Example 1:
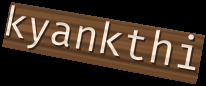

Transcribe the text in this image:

kyankthi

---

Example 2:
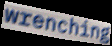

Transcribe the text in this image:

wrenching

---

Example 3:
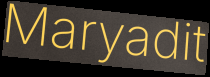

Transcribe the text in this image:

Maryadit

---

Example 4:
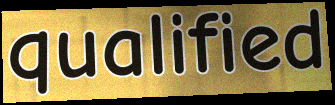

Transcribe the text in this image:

qualified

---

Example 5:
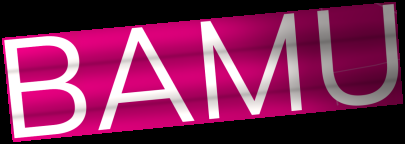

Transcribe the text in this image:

BAMU